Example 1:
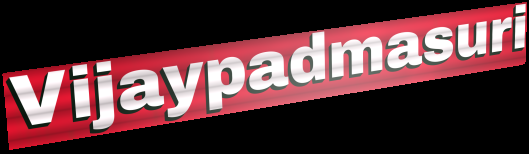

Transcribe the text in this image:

Vijaypadmasuri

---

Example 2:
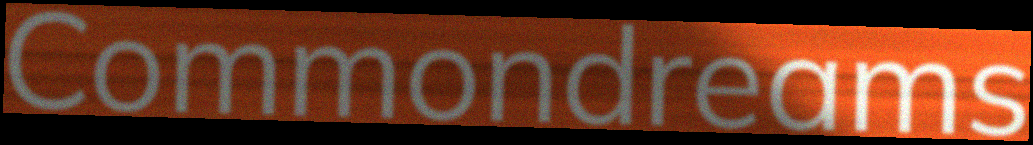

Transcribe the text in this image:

Commondreams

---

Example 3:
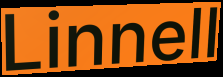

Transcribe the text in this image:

Linnell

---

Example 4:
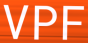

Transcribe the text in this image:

VPF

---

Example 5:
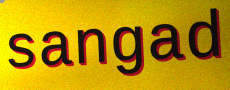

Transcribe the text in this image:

sangad